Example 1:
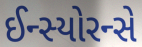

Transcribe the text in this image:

ઈન્સ્યોરન્સે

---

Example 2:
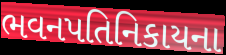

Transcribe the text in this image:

ભવનપતિનિકાયના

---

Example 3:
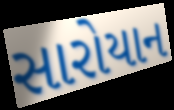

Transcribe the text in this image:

સારોયાન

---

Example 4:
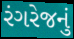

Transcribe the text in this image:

રંગરેજનું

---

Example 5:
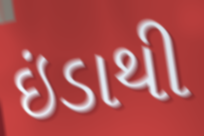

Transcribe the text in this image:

ઇંડાથી